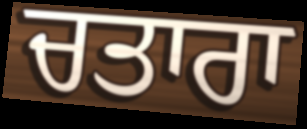
ਚਤਾਰਾ